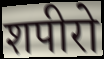
शपीरो